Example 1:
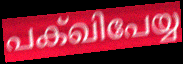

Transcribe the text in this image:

പക്ഖിപേയ്യ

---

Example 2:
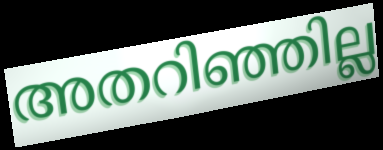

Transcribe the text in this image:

അതറിഞ്ഞില്ല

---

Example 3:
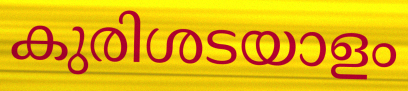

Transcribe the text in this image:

കുരിശടയാളം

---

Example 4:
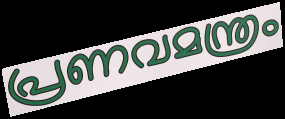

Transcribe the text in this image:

പ്രണവമന്ത്രം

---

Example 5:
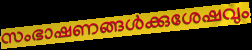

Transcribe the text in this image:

സംഭാഷണങ്ങൾക്കുശേഷവും